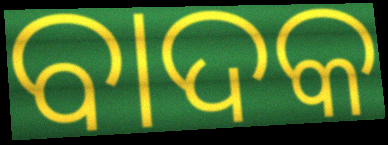
ବାଦକ